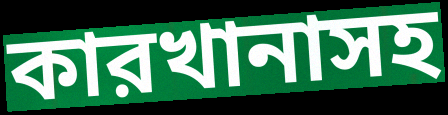
কারখানাসহ